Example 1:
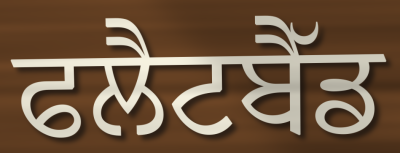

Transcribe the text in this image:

ਫਲੈਟਬੈੱਡ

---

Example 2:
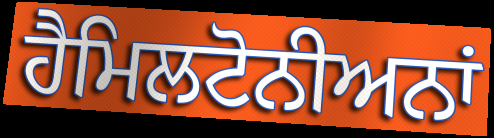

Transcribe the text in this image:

ਹੈਮਿਲਟੋਨੀਅਨਾਂ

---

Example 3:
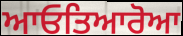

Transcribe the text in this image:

ਆਓਤਿਆਰੋਆ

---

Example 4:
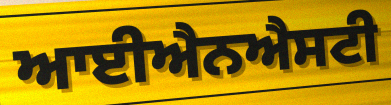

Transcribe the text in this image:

ਆਈਐਨਐਸਟੀ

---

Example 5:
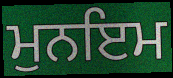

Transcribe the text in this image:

ਮੁਨਇਮ